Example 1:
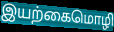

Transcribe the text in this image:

இயற்கைமொழி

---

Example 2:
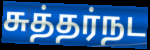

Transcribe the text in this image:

சுத்தர்நட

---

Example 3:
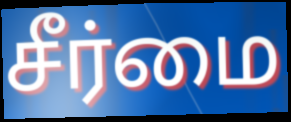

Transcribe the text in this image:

சீர்மை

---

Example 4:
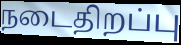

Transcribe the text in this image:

நடைதிறப்பு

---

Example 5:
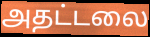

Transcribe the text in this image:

அதட்டலை